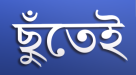
ছুঁতেই